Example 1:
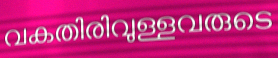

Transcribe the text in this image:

വകതിരിവുള്ളവരുടെ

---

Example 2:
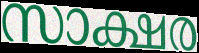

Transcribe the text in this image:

സാക്ഷര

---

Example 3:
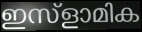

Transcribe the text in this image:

ഇസ്ളാമിക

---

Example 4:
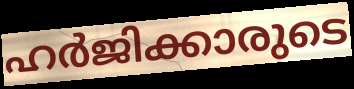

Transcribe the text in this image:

ഹർജിക്കാരുടെ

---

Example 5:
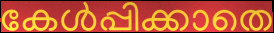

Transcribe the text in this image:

കേൾപ്പിക്കാതെ